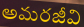
అమరజీవి